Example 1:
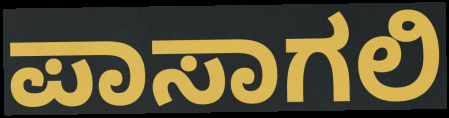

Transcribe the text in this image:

ಪಾಸಾಗಲಿ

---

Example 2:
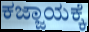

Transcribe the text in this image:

ಕಜ್ಜಾಯಕ್ಕೆ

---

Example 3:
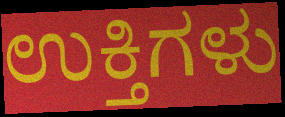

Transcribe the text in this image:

ಉಕ್ತಿಗಳು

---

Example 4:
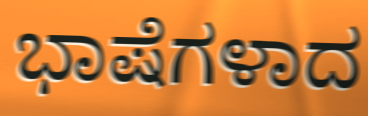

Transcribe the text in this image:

ಭಾಷೆಗಳಾದ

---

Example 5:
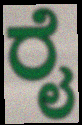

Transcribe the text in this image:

ರೈ